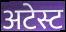
अटेस्ट